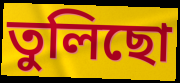
তুলিছো